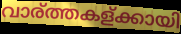
വാര്ത്തകള്ക്കായി